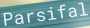
Parsifal